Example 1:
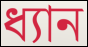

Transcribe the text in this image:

ধ্যান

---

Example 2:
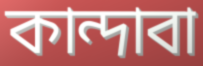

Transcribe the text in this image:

কান্দাবা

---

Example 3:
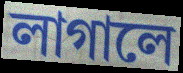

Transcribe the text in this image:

লাগালে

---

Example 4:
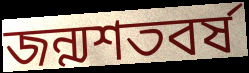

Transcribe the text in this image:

জন্মশতবর্ষ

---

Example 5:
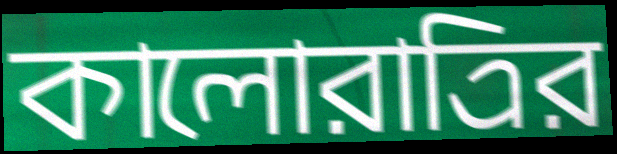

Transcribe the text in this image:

কালোরাত্রির